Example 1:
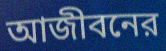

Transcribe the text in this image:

আজীবনের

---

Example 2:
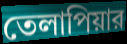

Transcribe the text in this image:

তেলাপিয়ার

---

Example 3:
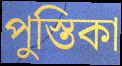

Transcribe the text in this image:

পুস্তিকা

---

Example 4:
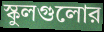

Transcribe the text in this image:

স্কুলগুলোর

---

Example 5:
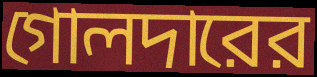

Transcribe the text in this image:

গোলদারের